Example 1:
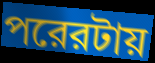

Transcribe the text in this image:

পরেরটায়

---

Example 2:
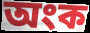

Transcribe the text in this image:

অংক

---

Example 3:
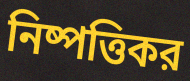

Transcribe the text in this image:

নিষ্পত্তিকর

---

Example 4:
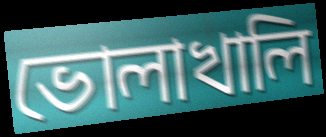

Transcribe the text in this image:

ভোলাখালি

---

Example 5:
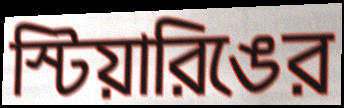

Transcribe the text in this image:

স্টিয়ারিঙের